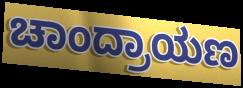
ಚಾಂದ್ರಾಯಣ